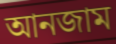
আনজাম